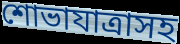
শোভাযাত্রাসহ